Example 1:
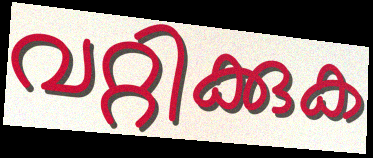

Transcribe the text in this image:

വറ്റിക്കുക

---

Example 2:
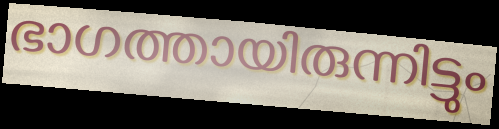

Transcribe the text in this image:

ഭാഗത്തായിരുന്നിട്ടും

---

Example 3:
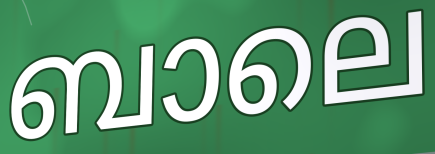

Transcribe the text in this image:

ബാലെ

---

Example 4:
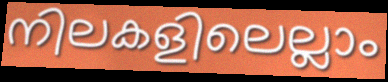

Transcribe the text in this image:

നിലകളിലെല്ലാം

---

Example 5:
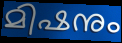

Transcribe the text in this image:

മിഷനും